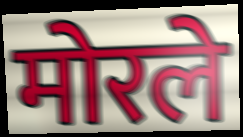
मोरले